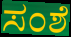
ಸಂಶೆ